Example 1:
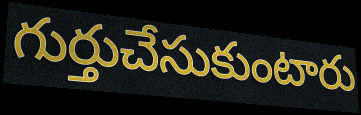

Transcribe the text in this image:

గుర్తుచేసుకుంటారు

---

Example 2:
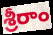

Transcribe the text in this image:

శ్రీరాం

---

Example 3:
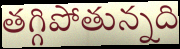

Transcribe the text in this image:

తగ్గిపోతున్నది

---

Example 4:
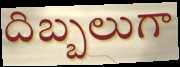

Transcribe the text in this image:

దిబ్బలుగా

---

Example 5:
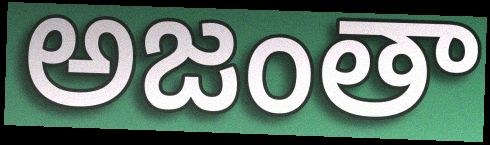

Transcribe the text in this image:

అజంతా